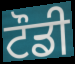
ਟੌਡੀ